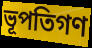
ভূপতিগণ